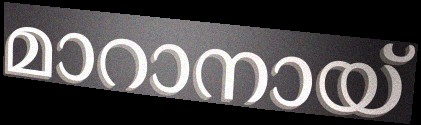
മാറാനായ്